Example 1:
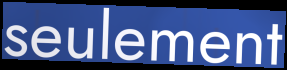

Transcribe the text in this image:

seulement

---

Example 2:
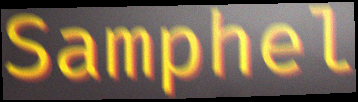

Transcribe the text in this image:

Samphel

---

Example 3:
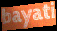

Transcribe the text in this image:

bayati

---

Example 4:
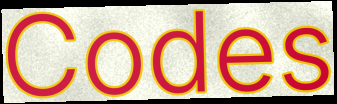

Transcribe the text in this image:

Codes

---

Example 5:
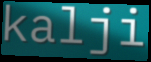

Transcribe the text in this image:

kalji